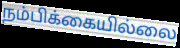
நம்பிக்கையில்லை